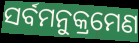
ସର୍ବମନୁକ୍ରମେଣ